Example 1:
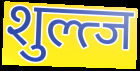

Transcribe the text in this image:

शुल्त्ज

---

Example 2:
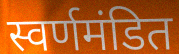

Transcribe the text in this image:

स्वर्णमंडित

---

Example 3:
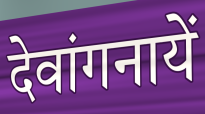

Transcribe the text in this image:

देवांगनायें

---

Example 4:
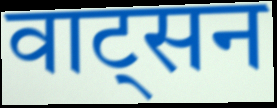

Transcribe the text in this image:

वाट्सन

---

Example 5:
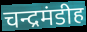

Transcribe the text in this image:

चन्द्रमंडीह